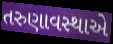
તરુણાવસ્થાએ